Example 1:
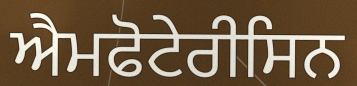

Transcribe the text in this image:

ਐਮਫੋਟੇਰੀਸਿਨ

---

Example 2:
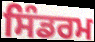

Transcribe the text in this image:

ਸਿੰਡਰਮ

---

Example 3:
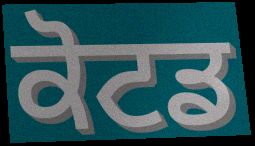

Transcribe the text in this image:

ਕੋਟਡ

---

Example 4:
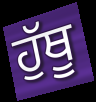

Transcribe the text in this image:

ਹੁੱਥੂ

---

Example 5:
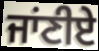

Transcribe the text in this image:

ਜਾਂਣੀਏ